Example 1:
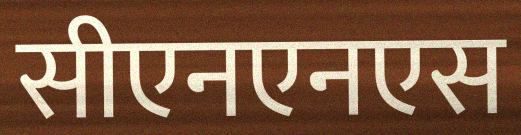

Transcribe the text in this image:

सीएनएनएस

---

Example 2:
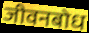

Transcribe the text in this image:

जीवनबोध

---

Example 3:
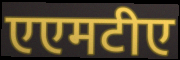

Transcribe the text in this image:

एएमटीए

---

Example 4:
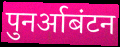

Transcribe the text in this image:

पुनर्आबंटन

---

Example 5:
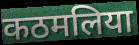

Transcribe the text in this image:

कठमलिया